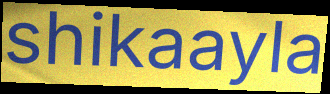
shikaayla